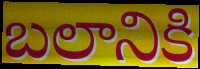
బలానికి